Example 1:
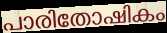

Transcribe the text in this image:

പാരിതോഷികം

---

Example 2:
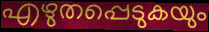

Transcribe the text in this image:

എഴുതപ്പെടുകയും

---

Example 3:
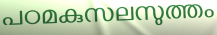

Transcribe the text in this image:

പഠമകുസലസുത്തം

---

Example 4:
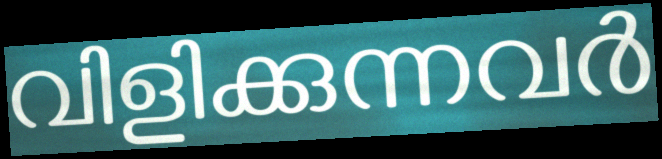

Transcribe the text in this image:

വിളിക്കുന്നവർ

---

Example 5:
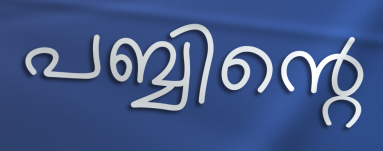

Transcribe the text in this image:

പബ്ബിന്റെ